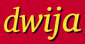
dwija